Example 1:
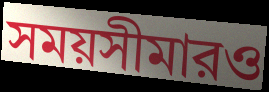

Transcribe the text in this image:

সময়সীমারও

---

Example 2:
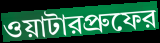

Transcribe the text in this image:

ওয়াটারপ্রুফের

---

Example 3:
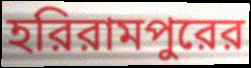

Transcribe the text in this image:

হরিরামপুরের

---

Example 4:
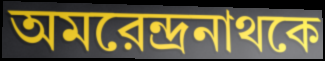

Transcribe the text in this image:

অমরেন্দ্রনাথকে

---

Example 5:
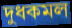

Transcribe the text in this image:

দুধকমল